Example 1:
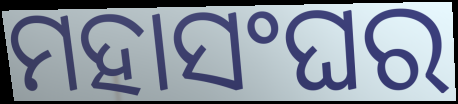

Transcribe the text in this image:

ମହାସଂଘର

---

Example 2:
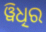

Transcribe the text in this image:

ୱିଧିର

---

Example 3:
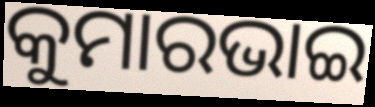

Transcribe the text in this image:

କୁମାରଭାଇ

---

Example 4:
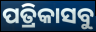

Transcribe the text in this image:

ପତ୍ରିକାସବୁ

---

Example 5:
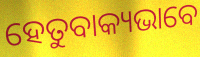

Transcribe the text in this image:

ହେତୁବାକ୍ୟଭାବେ